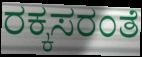
ರಕ್ಕಸರಂತೆ